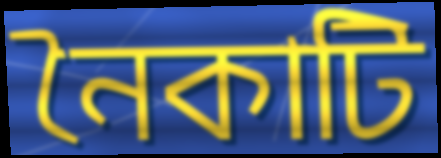
নৈকাটি